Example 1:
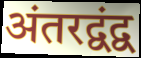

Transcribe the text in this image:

अंतरद्वंद्व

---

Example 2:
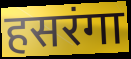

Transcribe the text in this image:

हसरंगा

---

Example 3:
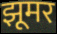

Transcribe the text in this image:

झूमर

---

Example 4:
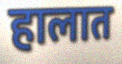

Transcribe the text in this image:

हालात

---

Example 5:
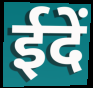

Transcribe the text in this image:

ईदें